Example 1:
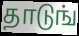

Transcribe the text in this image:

தாடுங்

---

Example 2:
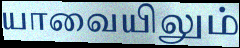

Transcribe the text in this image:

யாவையிலும்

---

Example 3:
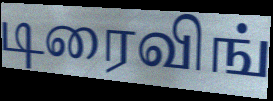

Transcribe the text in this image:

டிரைவிங்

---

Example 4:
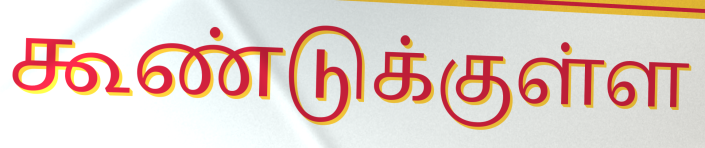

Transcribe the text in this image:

கூண்டுக்குள்ள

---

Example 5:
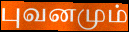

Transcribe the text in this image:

புவனமும்